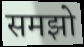
समझो